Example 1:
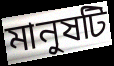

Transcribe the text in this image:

মানুষটি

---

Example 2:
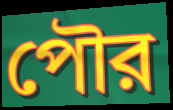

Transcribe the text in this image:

পৌর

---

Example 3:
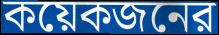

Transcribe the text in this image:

কয়েকজনের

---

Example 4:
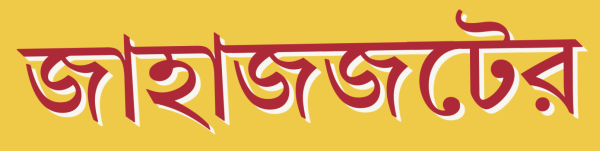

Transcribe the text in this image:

জাহাজজটের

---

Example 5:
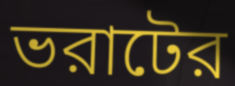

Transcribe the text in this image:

ভরাটের